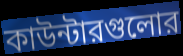
কাউন্টারগুলোর